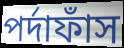
পর্দাফাঁস